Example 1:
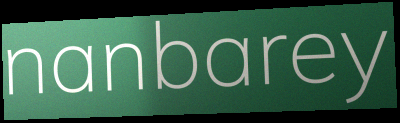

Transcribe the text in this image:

nanbarey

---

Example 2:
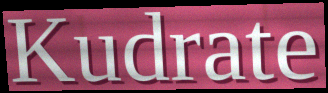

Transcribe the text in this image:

Kudrate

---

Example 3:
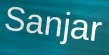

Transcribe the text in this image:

Sanjar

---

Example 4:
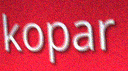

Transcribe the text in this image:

kopar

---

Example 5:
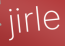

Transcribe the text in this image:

jirle